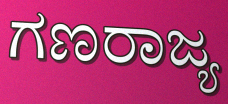
ಗಣರಾಜ್ಯ